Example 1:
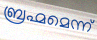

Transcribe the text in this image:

ബ്രഹ്മമെന്ന്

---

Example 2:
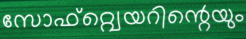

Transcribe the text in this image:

സോഫ്റ്റ്വെയറിന്റെയും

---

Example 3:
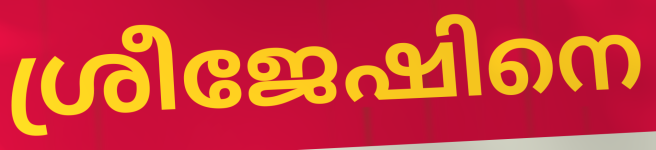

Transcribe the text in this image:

ശ്രീജേഷിനെ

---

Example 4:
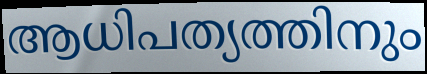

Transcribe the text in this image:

ആധിപത്യത്തിനും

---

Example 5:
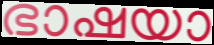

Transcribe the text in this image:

ഭാഷയാ